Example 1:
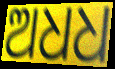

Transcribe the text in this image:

ଅଧଧ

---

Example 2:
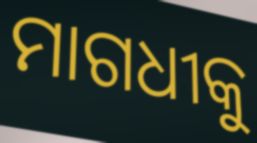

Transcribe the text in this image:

ମାଗଧୀକୁ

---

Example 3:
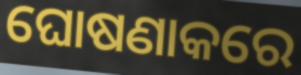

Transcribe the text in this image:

ଘୋଷଣାକରେ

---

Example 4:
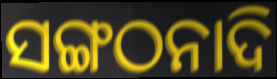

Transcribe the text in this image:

ସଙ୍ଗଠନାଦି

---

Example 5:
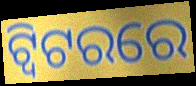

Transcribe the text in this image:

ଟ୍ବିଟରରେ